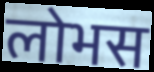
लोभस